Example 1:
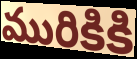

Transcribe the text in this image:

మురికికి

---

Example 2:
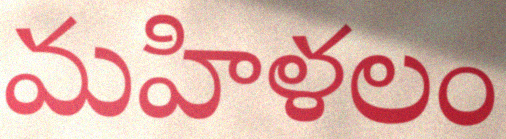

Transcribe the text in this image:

మహిళలం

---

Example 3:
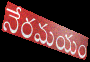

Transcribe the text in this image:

నేరమయం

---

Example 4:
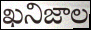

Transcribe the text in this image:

ఖనిజాల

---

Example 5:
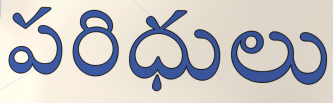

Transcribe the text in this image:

పరిధులు